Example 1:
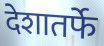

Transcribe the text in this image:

देशातर्फे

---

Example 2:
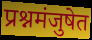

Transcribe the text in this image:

प्रश्नमंजुषेत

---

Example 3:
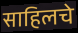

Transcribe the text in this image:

साहिलचे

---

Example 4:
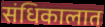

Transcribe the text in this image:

संधिकालात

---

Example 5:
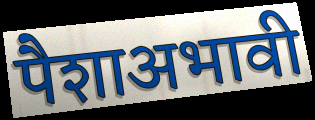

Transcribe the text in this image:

पैशाअभावी